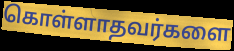
கொள்ளாதவர்களை